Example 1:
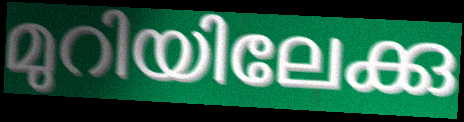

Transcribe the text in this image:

മുറിയിലേക്കു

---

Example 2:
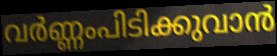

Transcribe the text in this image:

വർണ്ണംപിടിക്കുവാൻ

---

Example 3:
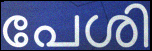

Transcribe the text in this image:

പേശി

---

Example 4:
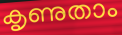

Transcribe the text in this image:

കൃണുതാം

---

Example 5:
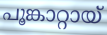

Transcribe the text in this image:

പൂങ്കാറ്റായ്